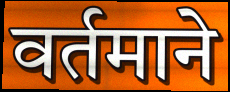
वर्तमाने